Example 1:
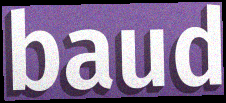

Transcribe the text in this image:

baud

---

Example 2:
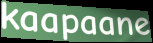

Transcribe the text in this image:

kaapaane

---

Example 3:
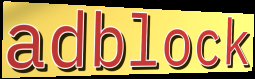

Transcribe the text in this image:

adblock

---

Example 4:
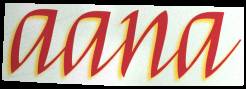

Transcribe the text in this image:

aana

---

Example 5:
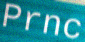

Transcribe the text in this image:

Prnc